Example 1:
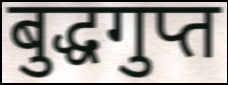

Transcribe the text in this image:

बुद्धगुप्त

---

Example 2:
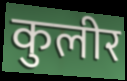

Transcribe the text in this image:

कुलीर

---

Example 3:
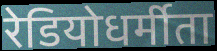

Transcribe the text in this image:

रेडियोधर्मीता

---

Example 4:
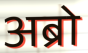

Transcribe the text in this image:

अब्रो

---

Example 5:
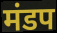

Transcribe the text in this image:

मंडप